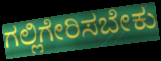
ಗಲ್ಲಿಗೇರಿಸಬೇಕು